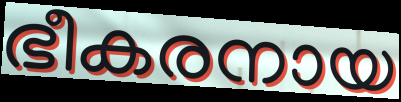
ഭീകരനായ